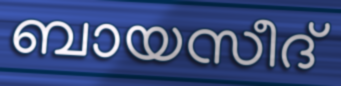
ബായസീദ്